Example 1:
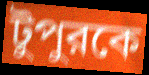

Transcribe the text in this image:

টুপুরকে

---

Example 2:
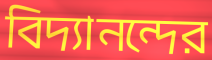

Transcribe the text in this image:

বিদ্যানন্দের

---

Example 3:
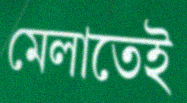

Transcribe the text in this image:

মেলাতেই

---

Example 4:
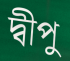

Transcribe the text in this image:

দ্বীপু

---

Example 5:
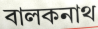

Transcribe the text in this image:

বালকনাথ